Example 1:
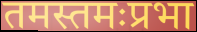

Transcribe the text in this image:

तमस्तमःप्रभा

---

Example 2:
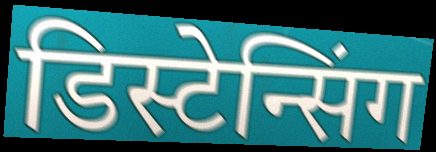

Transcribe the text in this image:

डिस्टेन्सिंग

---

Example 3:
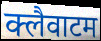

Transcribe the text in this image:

क्लैवाटम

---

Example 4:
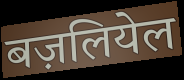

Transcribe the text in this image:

बज़लियेल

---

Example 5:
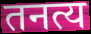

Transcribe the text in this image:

तनत्य